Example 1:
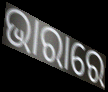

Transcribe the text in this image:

ଭାରାରେ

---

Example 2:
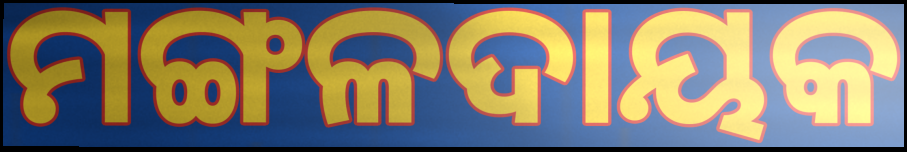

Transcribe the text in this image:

ମଙ୍ଗଳଦାୟକ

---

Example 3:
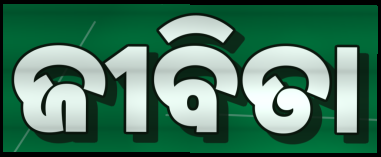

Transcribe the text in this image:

ଜୀବିତା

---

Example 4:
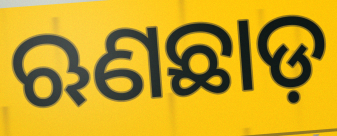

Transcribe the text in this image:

ଋଣଛାଡ଼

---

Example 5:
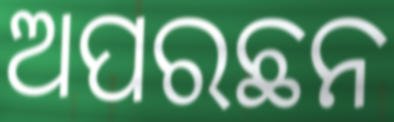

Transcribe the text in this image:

ଅପରଛନ